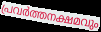
പ്രവർത്തനക്ഷമവും